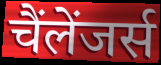
चैंलेंजर्स